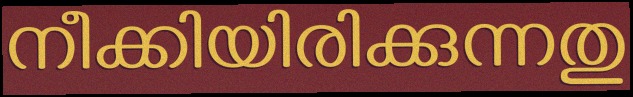
നീക്കിയിരിക്കുന്നതു